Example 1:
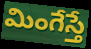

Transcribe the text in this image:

మింగేస్తే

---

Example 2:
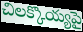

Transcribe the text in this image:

చిలక్కొయ్యపై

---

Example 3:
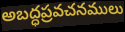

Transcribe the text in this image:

అబద్ధప్రవచనములు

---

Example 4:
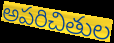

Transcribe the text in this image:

అపరిచితుల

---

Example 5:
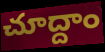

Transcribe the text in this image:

చూద్దాం